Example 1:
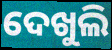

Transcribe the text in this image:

ଦେଖୁଲି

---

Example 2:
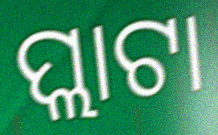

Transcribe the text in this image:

ପ୍ଲାଟା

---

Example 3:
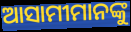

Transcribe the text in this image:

ଆସାମୀମାନଙ୍କୁ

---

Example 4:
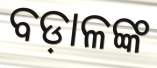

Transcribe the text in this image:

ବଡ଼ାଳଙ୍କ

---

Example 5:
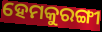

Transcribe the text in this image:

ହେମକୁରଙ୍ଗୀ